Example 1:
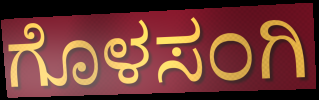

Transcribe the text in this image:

ಗೊಳಸಂಗಿ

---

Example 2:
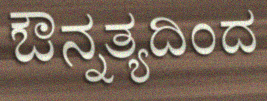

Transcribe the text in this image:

ಔನ್ನತ್ಯದಿಂದ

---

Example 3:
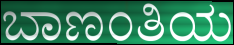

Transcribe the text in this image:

ಬಾಣಂತಿಯ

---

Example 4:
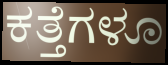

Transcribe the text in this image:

ಕತ್ತೆಗಳೂ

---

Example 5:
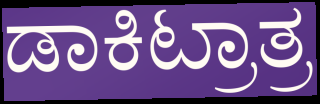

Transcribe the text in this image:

ಡಾಕಿಟ್ರಾತ್ರ